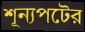
শূন্যপটের